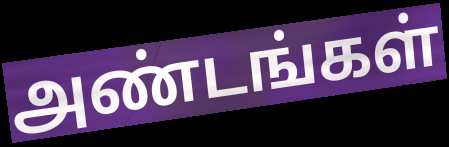
அண்டங்கள்